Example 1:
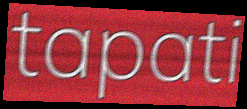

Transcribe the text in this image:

tapati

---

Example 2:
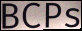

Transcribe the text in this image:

BCPs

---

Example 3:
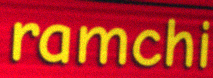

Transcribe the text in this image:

ramchi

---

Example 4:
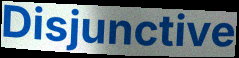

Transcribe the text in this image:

Disjunctive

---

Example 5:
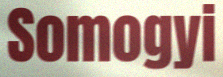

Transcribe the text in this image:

Somogyi